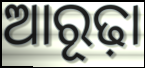
ଆରୂଢ଼ା